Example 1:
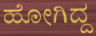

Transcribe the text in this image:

ಹೋಗಿದ್ದ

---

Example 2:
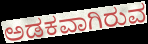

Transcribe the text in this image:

ಅಡಕವಾಗಿರುವ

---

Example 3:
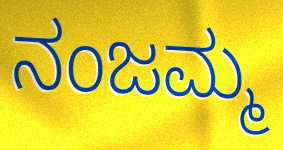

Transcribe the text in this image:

ನಂಜಮ್ಮ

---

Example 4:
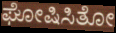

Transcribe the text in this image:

ಘೋಷಿಸಿತೋ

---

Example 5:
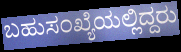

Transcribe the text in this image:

ಬಹುಸಂಖ್ಯೆಯಲ್ಲಿದ್ದರು